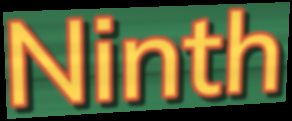
Ninth